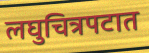
लघुचित्रपटात